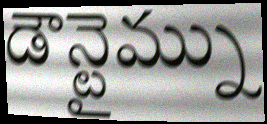
డౌన్టైమ్ను